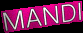
MANDI